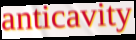
anticavity